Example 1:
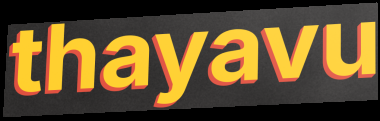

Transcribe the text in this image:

thayavu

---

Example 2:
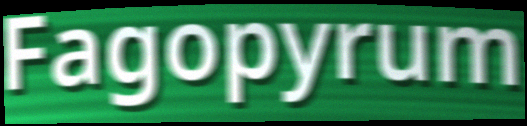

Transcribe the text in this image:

Fagopyrum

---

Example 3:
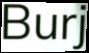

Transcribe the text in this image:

Burj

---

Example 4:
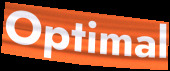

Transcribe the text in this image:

Optimal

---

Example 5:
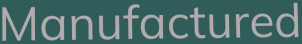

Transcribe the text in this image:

Manufactured